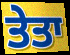
ਤੇਤਾ